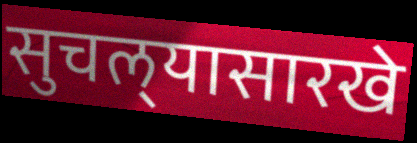
सुचल्यासारखे